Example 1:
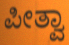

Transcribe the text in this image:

ಪೀತ್ವಾ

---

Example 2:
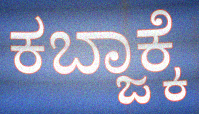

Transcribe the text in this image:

ಕಬ್ಜಾಕ್ಕೆ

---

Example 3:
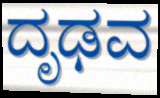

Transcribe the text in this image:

ದೃಢವ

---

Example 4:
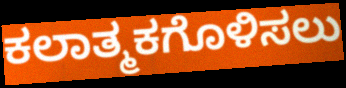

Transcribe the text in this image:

ಕಲಾತ್ಮಕಗೊಳಿಸಲು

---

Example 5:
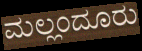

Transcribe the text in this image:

ಮಲ್ಲಂದೂರು